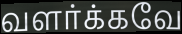
வளர்க்கவே